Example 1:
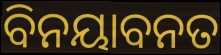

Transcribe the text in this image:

ବିନୟାବନତ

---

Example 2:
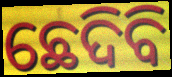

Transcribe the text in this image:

ଛେଦିବି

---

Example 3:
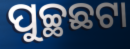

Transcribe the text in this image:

ପୁଚ୍ଛଛଟା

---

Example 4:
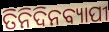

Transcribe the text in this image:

ତିନିଦିନବ୍ୟାପୀ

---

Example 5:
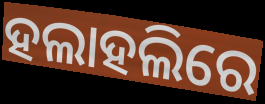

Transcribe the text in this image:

ହଲାହଲିରେ